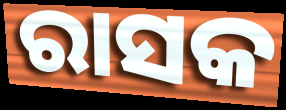
ରାସକ